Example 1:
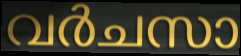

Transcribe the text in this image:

വർചസാ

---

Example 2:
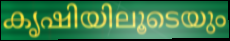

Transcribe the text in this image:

കൃഷിയിലൂടെയും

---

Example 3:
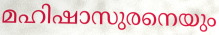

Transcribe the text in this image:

മഹിഷാസുരനെയും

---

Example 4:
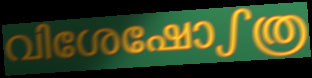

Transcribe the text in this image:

വിശേഷോഽത്ര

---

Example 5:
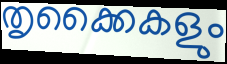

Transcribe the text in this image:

തൃക്കൈകളും